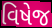
વિષેજ